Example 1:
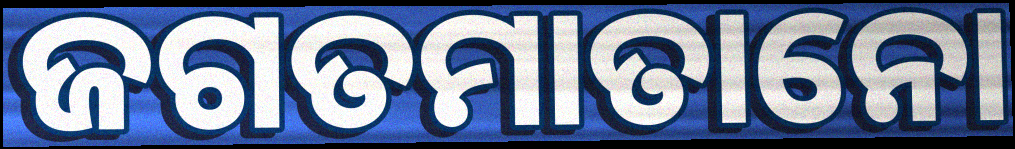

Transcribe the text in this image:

ଜଗତମାତାନୋ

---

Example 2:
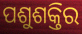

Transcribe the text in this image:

ପଶୁଶକ୍ତିର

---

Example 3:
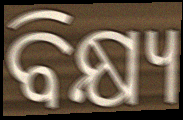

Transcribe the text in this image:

ବିକ୍ଷ୍ଯ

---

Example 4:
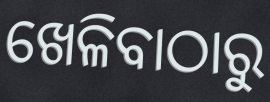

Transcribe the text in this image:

ଖେଳିବାଠାରୁ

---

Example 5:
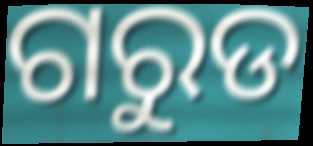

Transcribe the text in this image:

ଗରୁଡ